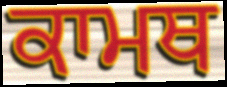
ਕਾਮਥ